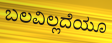
ಬಲವಿಲ್ಲದೆಯೂ